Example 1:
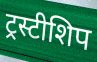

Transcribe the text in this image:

ट्रस्टीशिप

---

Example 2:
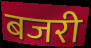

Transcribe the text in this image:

बजरी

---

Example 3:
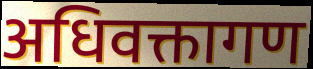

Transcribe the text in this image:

अधिवक्तागण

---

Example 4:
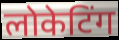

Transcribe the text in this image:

लोकेटिंग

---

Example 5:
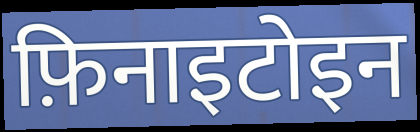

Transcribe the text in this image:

फ़िनाइटोइन